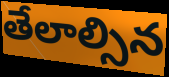
తేలాల్సిన